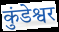
कुंडेश्वर